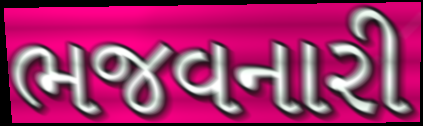
ભજવનારી